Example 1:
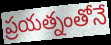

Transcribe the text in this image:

ప్రయత్నంతోనే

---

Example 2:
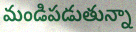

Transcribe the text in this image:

మండిపడుతున్నా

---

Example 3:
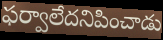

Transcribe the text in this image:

ఫర్వాలేదనిపించాడు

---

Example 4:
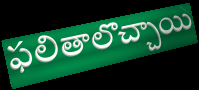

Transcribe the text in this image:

ఫలితాలొచ్చాయి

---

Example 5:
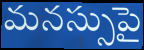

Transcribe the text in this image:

మనస్సుపై